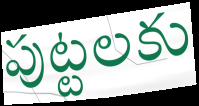
పుట్టలకు